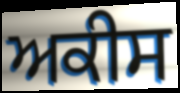
ਅਕੀਸ